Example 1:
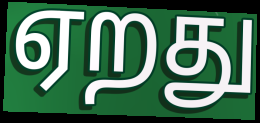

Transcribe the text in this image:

ஏறது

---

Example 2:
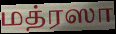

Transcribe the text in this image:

மத்ரஸா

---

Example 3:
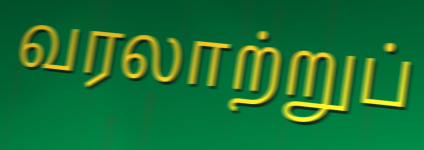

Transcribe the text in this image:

வரலாற்றுப்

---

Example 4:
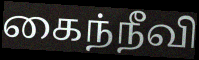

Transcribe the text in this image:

கைந்நீவி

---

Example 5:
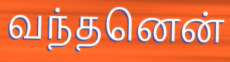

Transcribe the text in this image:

வந்தனென்